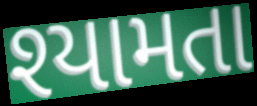
શ્યામતા